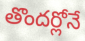
తొందర్లోనే